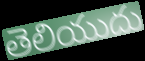
తెలియుదు